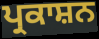
ਪ੍ਰਕਾਸ਼ਨ